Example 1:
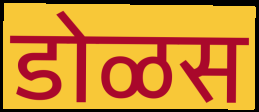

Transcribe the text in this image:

डोळस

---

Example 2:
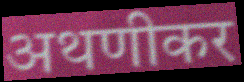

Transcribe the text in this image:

अथणीकर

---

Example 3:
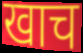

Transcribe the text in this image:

खाच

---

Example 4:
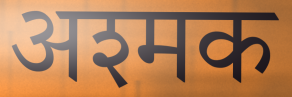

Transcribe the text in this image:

अश्मक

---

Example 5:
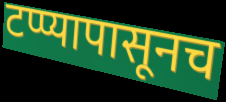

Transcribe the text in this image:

टप्प्यापासूनच